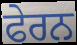
ਫੇਰਨ